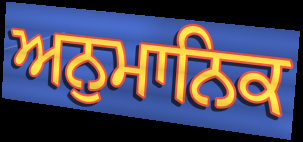
ਅਨੁਮਾਨਿਕ